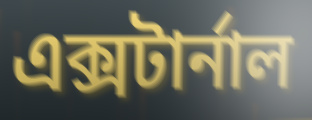
এক্সটার্নাল